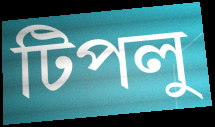
টিপলু